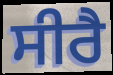
ਸੀਰੈ